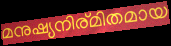
മനുഷ്യനിര്മിതമായ